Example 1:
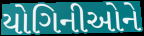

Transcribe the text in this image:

યોગિનીઓને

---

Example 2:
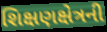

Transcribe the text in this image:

શિક્ષણક્ષેત્રની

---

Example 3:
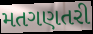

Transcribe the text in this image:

મતગણતરી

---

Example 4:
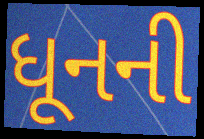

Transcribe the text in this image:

ધૂનની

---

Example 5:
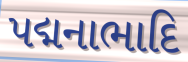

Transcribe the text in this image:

પદ્મનાભાદિ